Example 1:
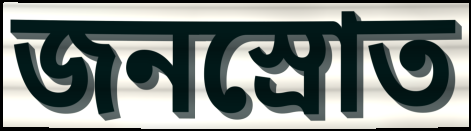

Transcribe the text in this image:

জনস্রোত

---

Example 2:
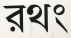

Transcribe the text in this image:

রথং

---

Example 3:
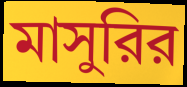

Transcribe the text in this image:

মাসুরির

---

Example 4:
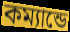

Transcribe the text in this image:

কম্যান্ডে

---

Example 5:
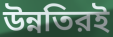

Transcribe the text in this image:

উন্নতিরই